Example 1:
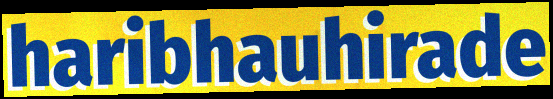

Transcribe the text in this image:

haribhauhirade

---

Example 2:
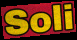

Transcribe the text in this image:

Soli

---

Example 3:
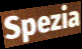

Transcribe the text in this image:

Spezia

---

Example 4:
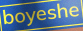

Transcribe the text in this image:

boyeshe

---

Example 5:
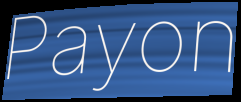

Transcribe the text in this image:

Payon